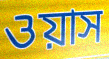
ওয়াস